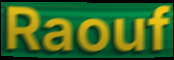
Raouf